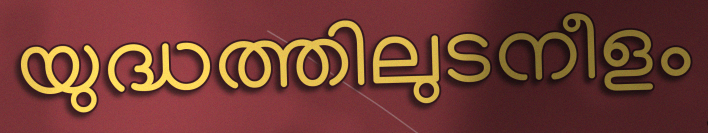
യുദ്ധത്തിലുടനീളം